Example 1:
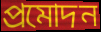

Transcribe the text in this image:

প্রমোদন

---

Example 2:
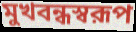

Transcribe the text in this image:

মুখবন্ধস্বরূপ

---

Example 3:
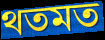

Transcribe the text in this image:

থতমত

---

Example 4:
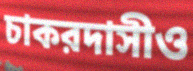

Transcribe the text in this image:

চাকরদাসীও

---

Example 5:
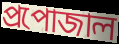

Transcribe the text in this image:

প্রপোজাল